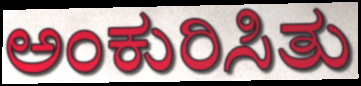
ಅಂಕುರಿಸಿತು